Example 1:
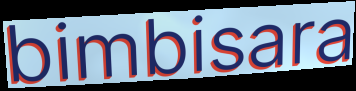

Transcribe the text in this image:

bimbisara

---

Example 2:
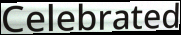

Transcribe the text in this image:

Celebrated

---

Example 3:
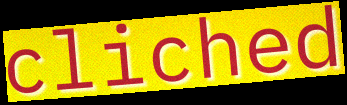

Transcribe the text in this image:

cliched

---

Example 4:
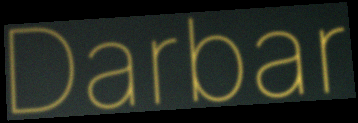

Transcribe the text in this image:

Darbar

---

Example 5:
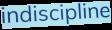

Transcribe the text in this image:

indiscipline